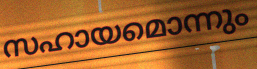
സഹായമൊന്നും